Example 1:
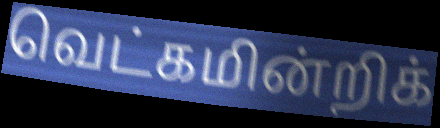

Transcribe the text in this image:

வெட்கமின்றிக்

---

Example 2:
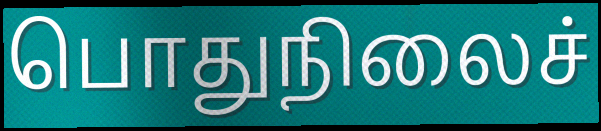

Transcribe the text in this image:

பொதுநிலைச்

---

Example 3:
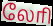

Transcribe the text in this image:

லேரி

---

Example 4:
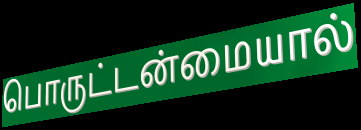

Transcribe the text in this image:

பொருட்டன்மையால்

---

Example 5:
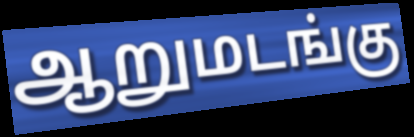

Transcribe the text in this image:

ஆறுமடங்கு